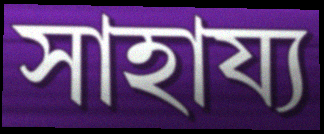
সাহায্য়